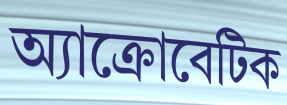
অ্যাক্রোবেটিক